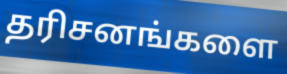
தரிசனங்களை